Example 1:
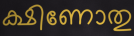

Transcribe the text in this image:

ക്ഷിണോതു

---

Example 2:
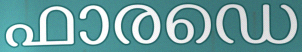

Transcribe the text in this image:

ഫാരഡെ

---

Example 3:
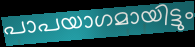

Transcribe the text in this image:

പാപയാഗമായിട്ടും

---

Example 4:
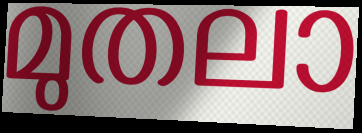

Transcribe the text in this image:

മുതലാ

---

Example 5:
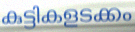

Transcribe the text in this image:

കുട്ടികളടക്കം